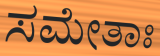
ಸಮೇತಾಃ